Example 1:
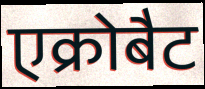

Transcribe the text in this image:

एक्रोबैट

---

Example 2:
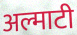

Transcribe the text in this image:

अल्माटी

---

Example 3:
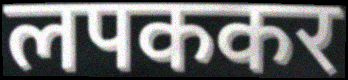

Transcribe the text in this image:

लपककर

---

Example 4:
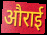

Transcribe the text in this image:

औराई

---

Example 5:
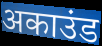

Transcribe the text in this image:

अकाउंड